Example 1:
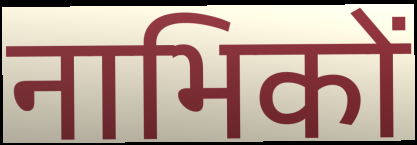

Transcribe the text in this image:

नाभिकों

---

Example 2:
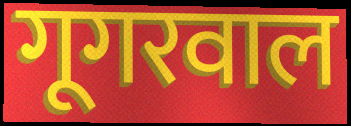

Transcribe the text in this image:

गूगरवाल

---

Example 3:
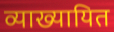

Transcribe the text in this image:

व्याख्यायित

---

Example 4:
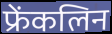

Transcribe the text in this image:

फ्रेंकलिन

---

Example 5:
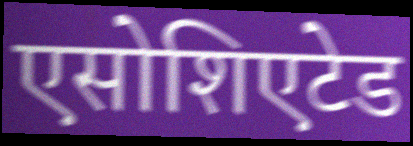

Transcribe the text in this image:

एसोशिएटेड